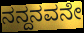
ನನ್ದನವನೇ